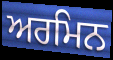
ਅਰਮਿਨ